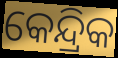
କେନ୍ଦ୍ରିକ